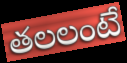
తలలంటే